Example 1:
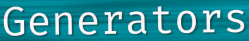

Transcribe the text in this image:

Generators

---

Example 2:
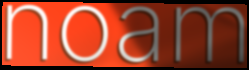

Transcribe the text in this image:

noam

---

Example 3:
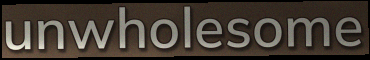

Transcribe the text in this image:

unwholesome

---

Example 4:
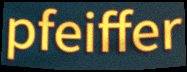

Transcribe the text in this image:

pfeiffer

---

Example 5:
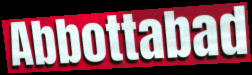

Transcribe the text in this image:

Abbottabad